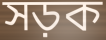
সড়ক